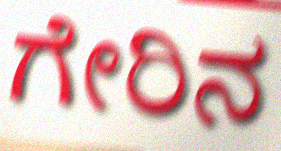
ಗೇರಿನ